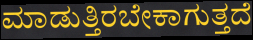
ಮಾಡುತ್ತಿರಬೇಕಾಗುತ್ತದೆ